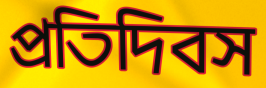
প্রতিদিবস